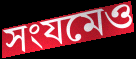
সংযমেও